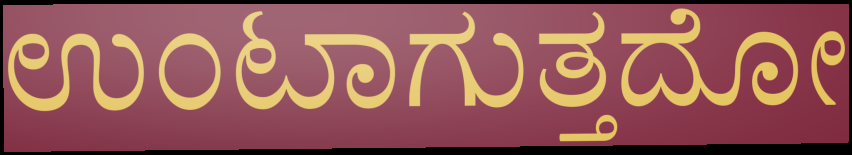
ಉಂಟಾಗುತ್ತದೋ